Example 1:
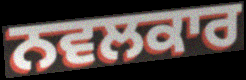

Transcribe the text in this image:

ਨਵਲਕਾਰ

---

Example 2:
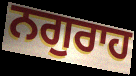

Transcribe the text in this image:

ਨਗੁਰਾਹ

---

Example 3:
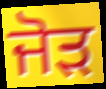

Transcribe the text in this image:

ਜੋੜ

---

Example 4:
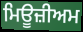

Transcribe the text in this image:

ਮਿਊਜ਼ੀਅਮ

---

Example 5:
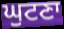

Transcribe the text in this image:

ਘੁਟਣਾ